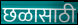
छळासाठी